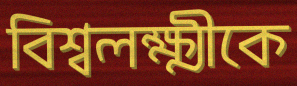
বিশ্বলক্ষ্মীকে